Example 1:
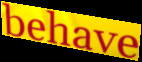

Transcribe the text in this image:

behave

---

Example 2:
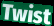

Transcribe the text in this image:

Twist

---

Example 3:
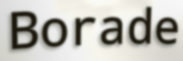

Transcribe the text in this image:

Borade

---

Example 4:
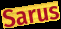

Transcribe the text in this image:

Sarus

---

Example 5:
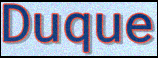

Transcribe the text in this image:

Duque